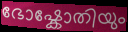
ഭോഷ്കോതിയും